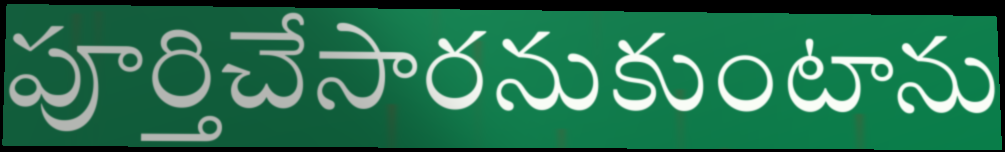
పూర్తిచేసారనుకుంటాను